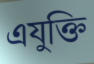
এযুক্তি